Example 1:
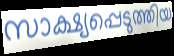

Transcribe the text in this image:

സാക്ഷ്യപ്പെടുത്തിയ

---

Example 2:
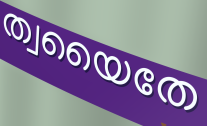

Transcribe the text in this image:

ത്വയൈതേ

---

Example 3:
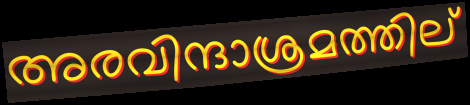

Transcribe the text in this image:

അരവിന്ദാശ്രമത്തില്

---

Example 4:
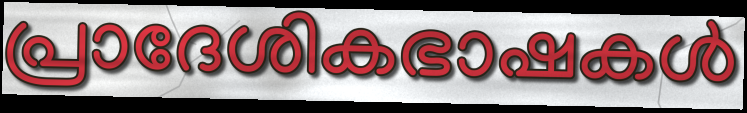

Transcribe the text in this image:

പ്രാദേശികഭാഷകൾ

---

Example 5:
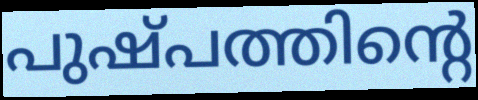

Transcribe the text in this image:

പുഷ്പത്തിന്റെ